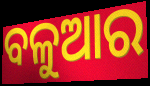
ବଳୁଆର